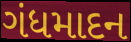
ગંધમાદન